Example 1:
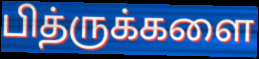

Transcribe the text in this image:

பித்ருக்களை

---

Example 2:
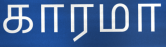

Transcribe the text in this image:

காரமா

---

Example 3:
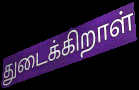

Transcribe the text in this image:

துடைக்கிறாள்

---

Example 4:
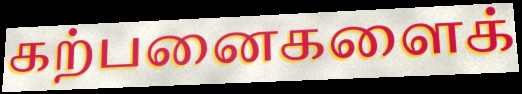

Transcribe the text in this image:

கற்பனைகளைக்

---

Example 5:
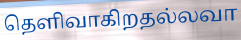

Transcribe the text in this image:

தெளிவாகிறதல்லவா